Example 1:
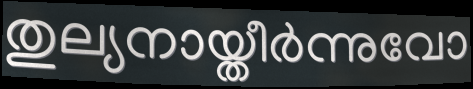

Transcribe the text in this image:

തുല്യനായ്തീർന്നുവോ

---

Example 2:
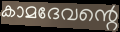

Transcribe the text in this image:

കാമദേവന്റെ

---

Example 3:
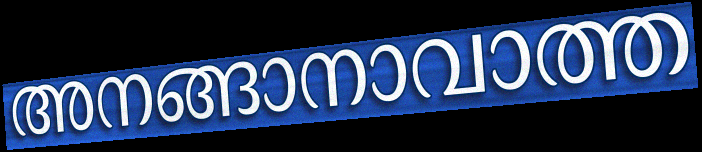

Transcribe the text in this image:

അനങ്ങാനാവാത്ത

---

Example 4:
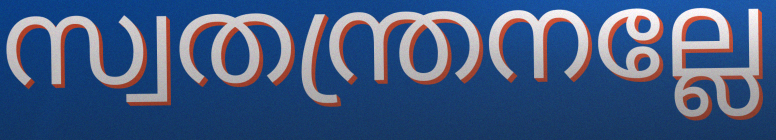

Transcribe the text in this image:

സ്വതന്ത്രനല്ലേ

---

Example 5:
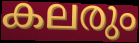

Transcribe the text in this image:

കലരും